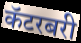
कॅटरबरी